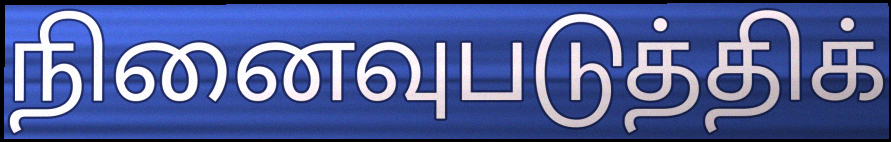
நினைவுபடுத்திக்